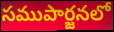
సముపార్జనలో